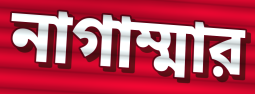
নাগাম্মার